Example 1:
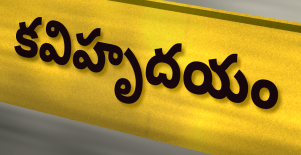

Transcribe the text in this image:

కవిహృదయం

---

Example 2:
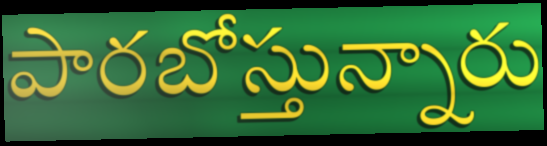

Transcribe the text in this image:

పారబోస్తున్నారు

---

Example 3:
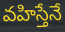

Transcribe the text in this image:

వహిస్తేనే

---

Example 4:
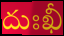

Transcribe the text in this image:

దుఃఖీ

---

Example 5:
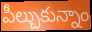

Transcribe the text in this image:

పీల్చుకున్నాం